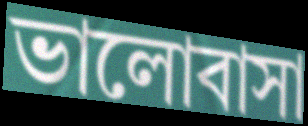
ভালোবাসা